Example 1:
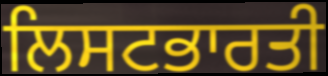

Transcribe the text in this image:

ਲਿਸਟਭਾਰਤੀ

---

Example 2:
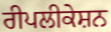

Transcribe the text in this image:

ਰੀਪਲੀਕੇਸ਼ਨ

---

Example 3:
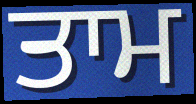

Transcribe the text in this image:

ਤਾਮ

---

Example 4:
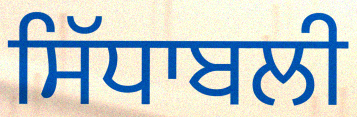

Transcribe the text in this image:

ਸਿੱਧਾਬਲੀ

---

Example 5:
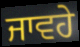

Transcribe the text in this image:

ਜਾਵਹੇ